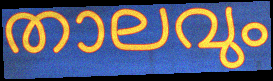
താലവും